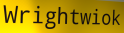
Wrightwiok